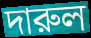
দারুল